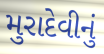
મુરાદેવીનું